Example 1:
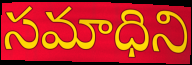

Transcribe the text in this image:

సమాధిని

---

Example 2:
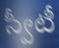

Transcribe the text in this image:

స్వీటీ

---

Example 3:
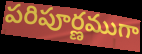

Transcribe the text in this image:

పరిపూర్ణముగా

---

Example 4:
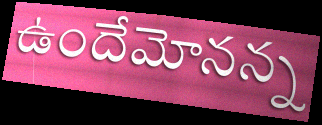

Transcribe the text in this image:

ఉందేమోనన్న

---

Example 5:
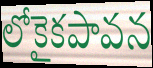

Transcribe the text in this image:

లోకైకపావన